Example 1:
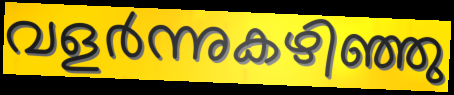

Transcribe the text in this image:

വളർന്നുകഴിഞ്ഞു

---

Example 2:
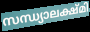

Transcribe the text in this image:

സന്ധ്യാലക്ഷ്മി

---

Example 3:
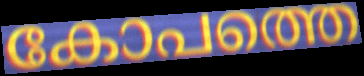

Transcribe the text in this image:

കോപത്തെ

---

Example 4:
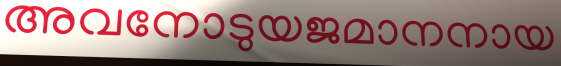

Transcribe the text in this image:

അവനോടുയജമാനനായ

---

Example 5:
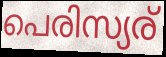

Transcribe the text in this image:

പെരിസ്യര്